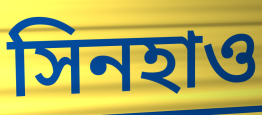
সিনহাও